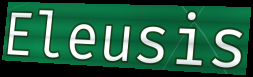
Eleusis